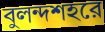
বুলন্দশহরে